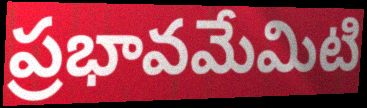
ప్రభావమేమిటి